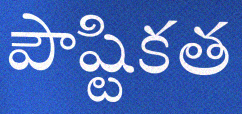
పౌష్టికత